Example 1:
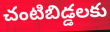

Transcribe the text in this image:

చంటిబిడ్డలకు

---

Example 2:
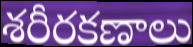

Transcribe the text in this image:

శరీరకణాలు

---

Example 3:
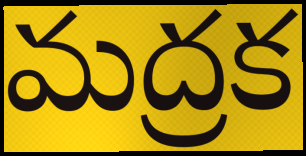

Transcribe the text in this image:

మద్రక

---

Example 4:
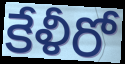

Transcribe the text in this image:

కేళీరో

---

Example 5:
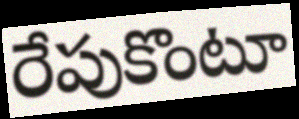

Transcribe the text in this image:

రేపుకొంటూ